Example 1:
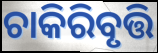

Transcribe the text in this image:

ଚାକିରିବୃତ୍ତି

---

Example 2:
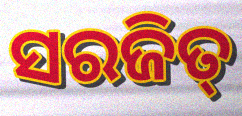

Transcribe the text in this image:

ସରଜିତ୍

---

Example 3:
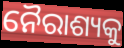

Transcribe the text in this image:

ନୈରାଶ୍ୟକୁ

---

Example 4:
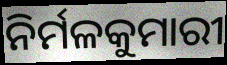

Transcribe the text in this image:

ନିର୍ମଳକୁମାରୀ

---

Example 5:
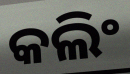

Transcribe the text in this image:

କଲିଂ